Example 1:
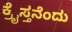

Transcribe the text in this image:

ಕ್ರೈಸ್ತನೆಂದು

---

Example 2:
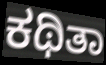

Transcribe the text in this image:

ಕಥಿತಾ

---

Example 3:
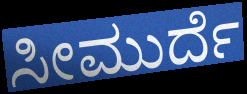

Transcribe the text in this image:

ಸೀಮುರ್ದೆ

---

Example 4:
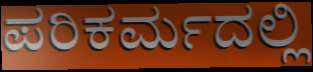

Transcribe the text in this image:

ಪರಿಕರ್ಮದಲ್ಲಿ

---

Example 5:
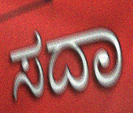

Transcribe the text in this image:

ಸದಾ